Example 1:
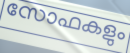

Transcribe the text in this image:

സോഫകളും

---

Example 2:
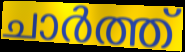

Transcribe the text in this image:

ചാർത്ത്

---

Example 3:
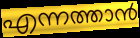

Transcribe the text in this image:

എന്നത്താൻ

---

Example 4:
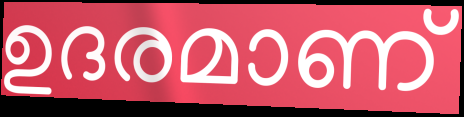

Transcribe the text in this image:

ഉദരമാണ്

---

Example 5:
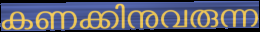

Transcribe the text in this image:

കണക്കിനുവരുന്ന